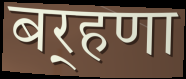
बर्हणा